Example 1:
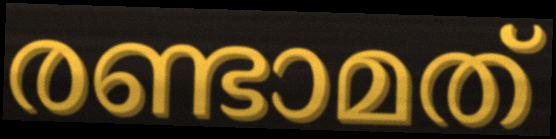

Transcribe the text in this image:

രണ്ടാമത്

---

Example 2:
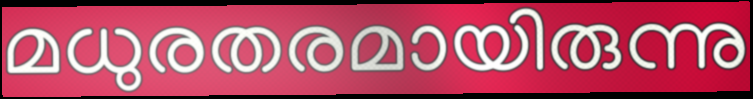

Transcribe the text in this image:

മധുരതരമായിരുന്നു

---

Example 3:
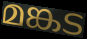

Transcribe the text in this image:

മങ്കട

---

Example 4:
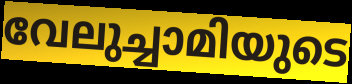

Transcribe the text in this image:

വേലുച്ചാമിയുടെ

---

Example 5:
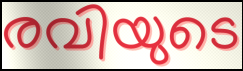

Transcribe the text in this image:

രവിയുടെ